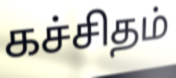
கச்சிதம்